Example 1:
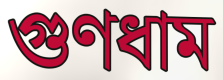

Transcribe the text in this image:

গুণধাম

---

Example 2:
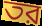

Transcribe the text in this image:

তর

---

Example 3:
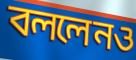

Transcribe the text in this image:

বললেনও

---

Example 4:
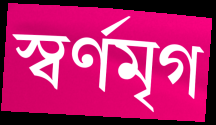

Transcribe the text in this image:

স্বর্ণমৃগ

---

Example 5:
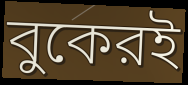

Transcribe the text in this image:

বুকেরই